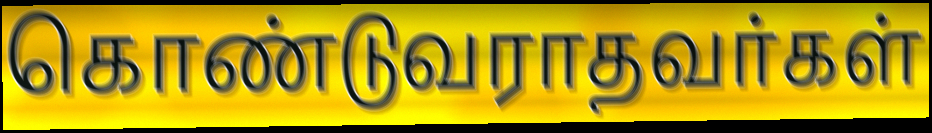
கொண்டுவராதவர்கள்